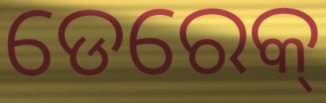
ଡେରେକ୍